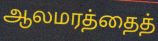
ஆலமரத்தைத்